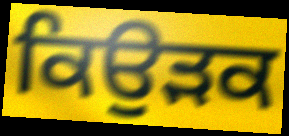
ਕਿਉੜਕ